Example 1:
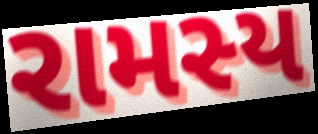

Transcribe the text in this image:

રામસ્ય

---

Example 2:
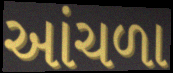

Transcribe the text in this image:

આંચળા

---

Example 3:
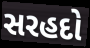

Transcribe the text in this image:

સરહદો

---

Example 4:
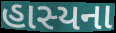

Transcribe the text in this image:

હાસ્યના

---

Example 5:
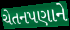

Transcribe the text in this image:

ચેતનપણાને